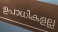
ഉപാധികളല്ല